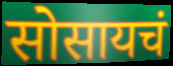
सोसायचं